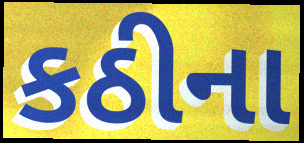
કઠીના